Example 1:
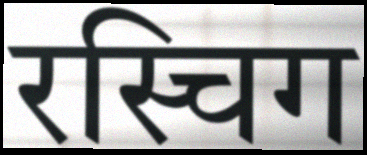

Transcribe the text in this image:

रस्चिग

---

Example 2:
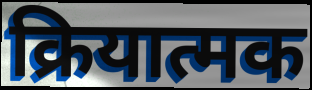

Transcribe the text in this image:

क्रियात्मक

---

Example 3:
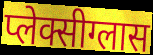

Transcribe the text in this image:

प्लेक्सीग्लास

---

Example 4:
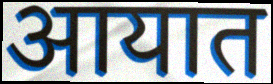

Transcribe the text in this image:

आयात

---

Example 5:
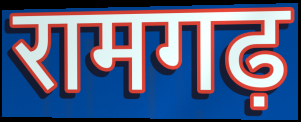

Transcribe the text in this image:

रामगढ़